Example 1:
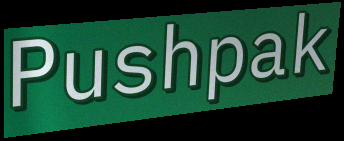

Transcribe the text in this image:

Pushpak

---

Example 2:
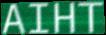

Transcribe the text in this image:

AIHT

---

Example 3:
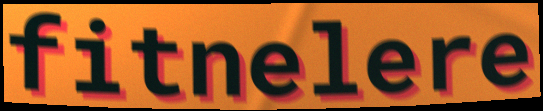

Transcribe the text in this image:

fitnelere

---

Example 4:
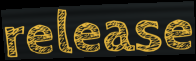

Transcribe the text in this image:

release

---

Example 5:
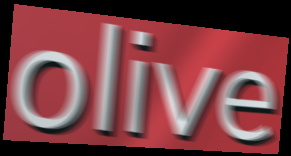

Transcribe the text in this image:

olive